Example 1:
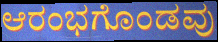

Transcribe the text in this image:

ಆರಂಭಗೊಂಡವು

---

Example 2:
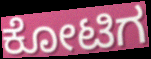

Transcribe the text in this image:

ಕೋಟಿಗ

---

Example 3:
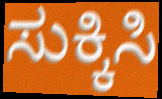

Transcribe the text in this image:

ಸುಕ್ಕಿಸಿ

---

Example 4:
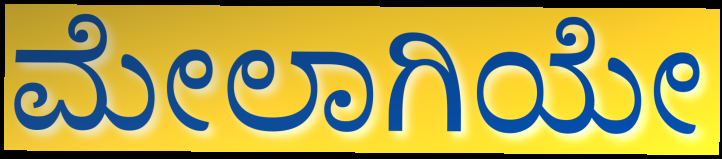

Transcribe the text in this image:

ಮೇಲಾಗಿಯೇ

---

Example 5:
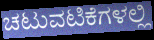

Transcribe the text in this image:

ಚಟುವಟಿಕೆಗಳಲ್ಲಿ